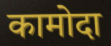
कामोदा